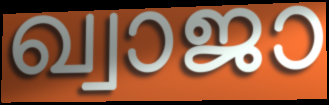
ഖ്വാജാ